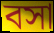
বসা